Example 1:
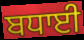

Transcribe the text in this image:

ਬਧਾਈ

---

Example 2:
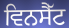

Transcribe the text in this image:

ਵਿਨਸੈੱਟ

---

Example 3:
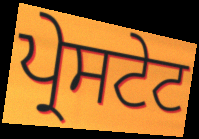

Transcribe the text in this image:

ਪ੍ਰੇਸਟੇਟ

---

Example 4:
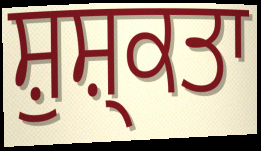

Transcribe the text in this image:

ਸ਼ੁਸ਼੍ਕਤਾ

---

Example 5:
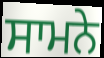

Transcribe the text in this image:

ਸਾਮਨੇ